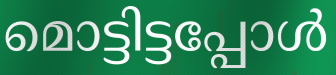
മൊട്ടിട്ടപ്പോൾ